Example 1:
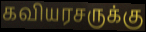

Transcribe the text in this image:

கவியரசருக்கு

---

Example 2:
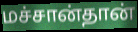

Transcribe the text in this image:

மச்சான்தான்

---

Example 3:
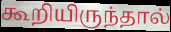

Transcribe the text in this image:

கூறியிருந்தால்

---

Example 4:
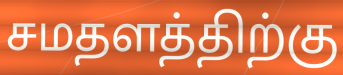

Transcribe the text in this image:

சமதளத்திற்கு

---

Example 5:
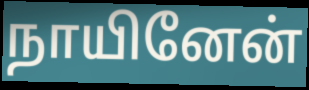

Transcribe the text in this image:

நாயினேன்